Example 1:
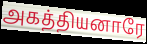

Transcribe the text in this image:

அகத்தியனாரே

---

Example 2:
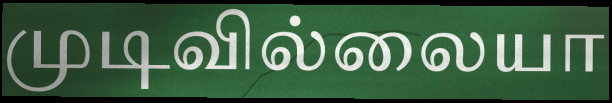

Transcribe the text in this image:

முடிவில்லையா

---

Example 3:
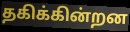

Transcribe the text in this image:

தகிக்கின்றன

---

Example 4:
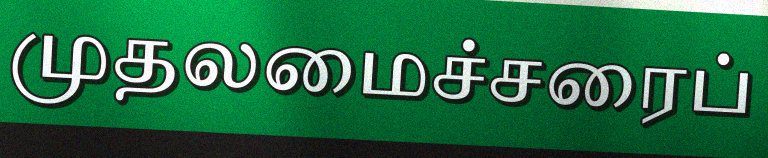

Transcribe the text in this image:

முதலமைச்சரைப்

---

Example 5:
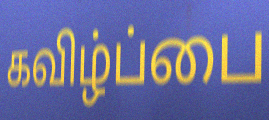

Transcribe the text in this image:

கவிழ்ப்பை